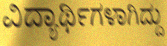
ವಿದ್ಯಾರ್ಥಿಗಳಾಗಿದ್ದು